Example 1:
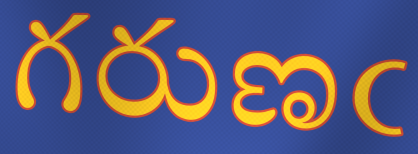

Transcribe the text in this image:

గరుణఁ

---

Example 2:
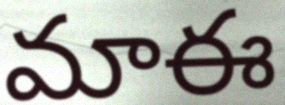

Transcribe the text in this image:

మాఈ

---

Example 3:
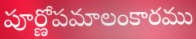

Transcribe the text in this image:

పూర్ణోపమాలంకారము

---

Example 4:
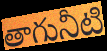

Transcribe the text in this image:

తాగునీటి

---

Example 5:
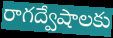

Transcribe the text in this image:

రాగద్వేషాలకు